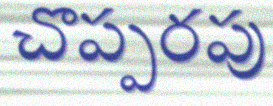
చొప్పరపు